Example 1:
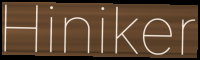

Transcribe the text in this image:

Hiniker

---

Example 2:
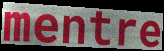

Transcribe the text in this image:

mentre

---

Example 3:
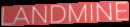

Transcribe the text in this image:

LANDMINE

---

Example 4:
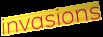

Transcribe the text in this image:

invasions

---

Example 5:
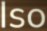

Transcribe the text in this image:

Iso